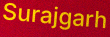
Surajgarh